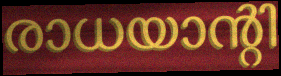
രാധയാന്റി